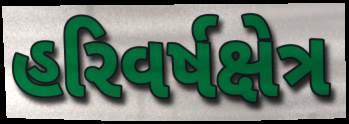
હરિવર્ષક્ષેત્ર